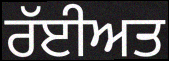
ਰੱਈਅਤ